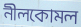
নীলকোমল